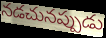
నడచునప్పుడు